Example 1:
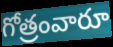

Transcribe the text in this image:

గోత్రంవారూ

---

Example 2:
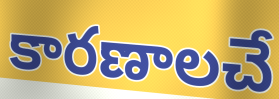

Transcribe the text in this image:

కారణాలచే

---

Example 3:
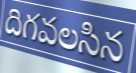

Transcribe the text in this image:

దిగవలసిన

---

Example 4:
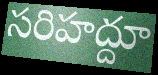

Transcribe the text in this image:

సరిహద్దూ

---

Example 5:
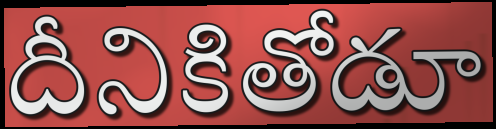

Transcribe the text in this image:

దీనికితోడూ